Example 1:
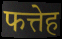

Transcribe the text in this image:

फत्तेह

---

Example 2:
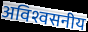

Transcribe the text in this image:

अविश्वसनीय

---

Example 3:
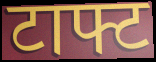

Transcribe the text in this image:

टाफ्ट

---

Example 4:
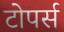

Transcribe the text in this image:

टोपर्स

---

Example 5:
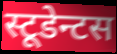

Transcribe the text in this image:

स्टूडेन्टस